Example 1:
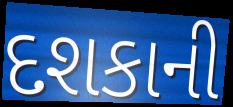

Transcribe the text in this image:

દશકાની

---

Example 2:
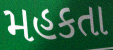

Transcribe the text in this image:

મહકતા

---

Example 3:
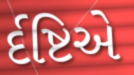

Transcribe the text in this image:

ર્દષ્ટિએ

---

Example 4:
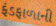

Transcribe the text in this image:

ફંડફાળાની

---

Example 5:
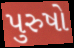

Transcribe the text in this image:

પુરુષો